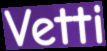
Vetti